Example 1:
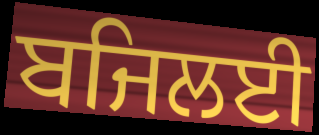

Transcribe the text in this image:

ਬਜਿਲਈ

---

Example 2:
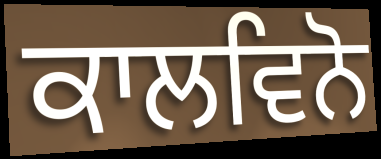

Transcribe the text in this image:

ਕਾਲਵਿਨੋ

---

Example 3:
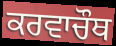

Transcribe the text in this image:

ਕਰਵਾਚੌਥ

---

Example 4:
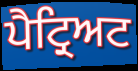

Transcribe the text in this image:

ਪੈਟ੍ਰਿਅਟ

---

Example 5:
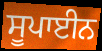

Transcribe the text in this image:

ਸੂਪਾਈਨ